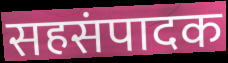
सहसंपादक